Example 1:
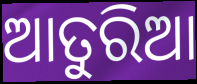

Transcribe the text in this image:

ଆତୁରିଆ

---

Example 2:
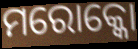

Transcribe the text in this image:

ମରୋକ୍କୋ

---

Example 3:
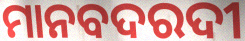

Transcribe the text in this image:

ମାନବଦରଦୀ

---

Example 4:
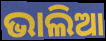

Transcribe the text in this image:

ଭାଲିଆ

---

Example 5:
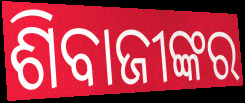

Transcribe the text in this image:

ଶିବାଜୀଙ୍କର